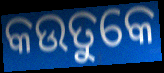
କଉତୁକେ